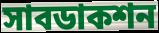
সাবডাকশন